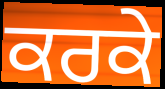
ਕਰਕੇ